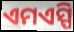
ଏମଏସ୍ପି